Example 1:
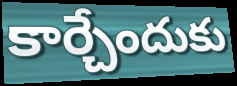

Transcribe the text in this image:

కార్చేందుకు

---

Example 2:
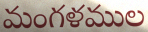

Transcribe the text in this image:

మంగళముల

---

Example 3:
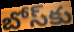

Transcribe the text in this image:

బోస్‌కు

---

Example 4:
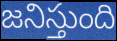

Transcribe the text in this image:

జనిస్తుంది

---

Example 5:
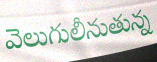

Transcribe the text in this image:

వెలుగులీనుతున్న